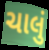
ચાલું